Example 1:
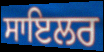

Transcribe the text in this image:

ਸਾਇਲਰ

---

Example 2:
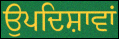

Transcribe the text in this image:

ਉਪਦਿਸ਼ਾਵਾਂ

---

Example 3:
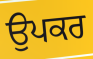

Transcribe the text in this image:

ਉਪਕਰ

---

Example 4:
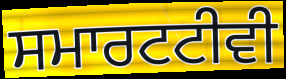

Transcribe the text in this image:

ਸਮਾਰਟਟੀਵੀ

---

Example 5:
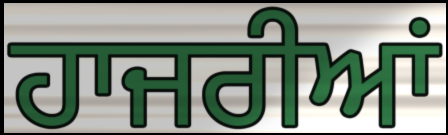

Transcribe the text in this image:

ਹਾਜਰੀਆਂ